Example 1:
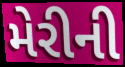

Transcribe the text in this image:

મેરીની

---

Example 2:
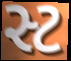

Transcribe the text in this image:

સ્ટ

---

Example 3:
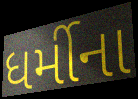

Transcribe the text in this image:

ધર્મીના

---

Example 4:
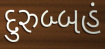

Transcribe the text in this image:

દુરુબ્બહં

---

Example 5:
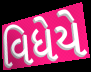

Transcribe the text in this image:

વિધેયે